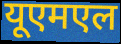
यूएमएल